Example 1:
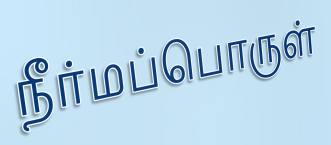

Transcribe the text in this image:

நீர்மப்பொருள்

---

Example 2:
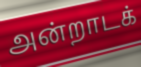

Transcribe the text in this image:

அன்றாடக்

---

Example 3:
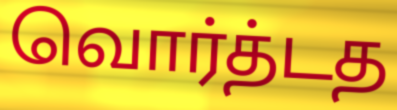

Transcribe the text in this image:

வொர்த்டத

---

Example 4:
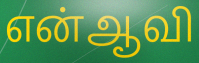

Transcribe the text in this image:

என்ஆவி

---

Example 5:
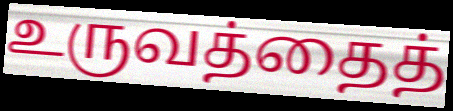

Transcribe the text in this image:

உருவத்தைத்